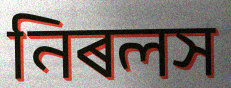
নিৰলস